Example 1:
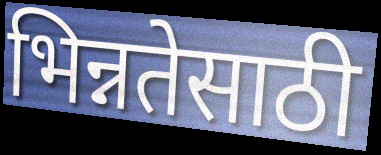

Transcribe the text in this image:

भिन्नतेसाठी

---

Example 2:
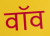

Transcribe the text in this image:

वॉव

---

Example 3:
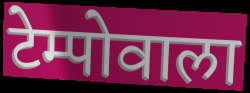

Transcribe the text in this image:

टेम्पोवाला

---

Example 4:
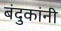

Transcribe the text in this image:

बंदुकांनी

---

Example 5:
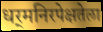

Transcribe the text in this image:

धर्मनिरपेक्षतेला